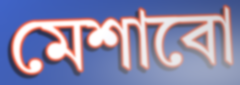
মেশাবো